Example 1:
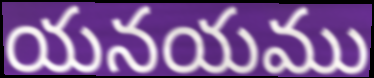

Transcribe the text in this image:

యనయము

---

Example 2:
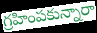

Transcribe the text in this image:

గ్రహింపకున్నారా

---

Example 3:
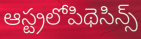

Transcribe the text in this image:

ఆస్ట్రలోపిథెసిన్స్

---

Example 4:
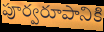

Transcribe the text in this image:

పూర్వరూపానికి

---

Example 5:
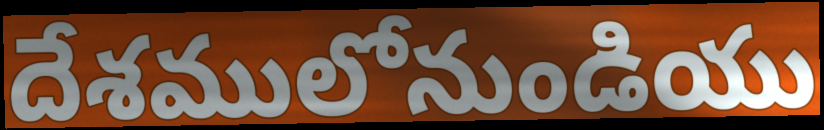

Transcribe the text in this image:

దేశములోనుండియు